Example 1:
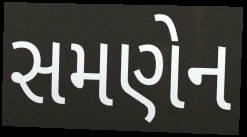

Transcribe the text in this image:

સમણેન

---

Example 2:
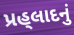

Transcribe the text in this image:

પ્રહ્‌લાદનું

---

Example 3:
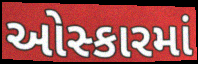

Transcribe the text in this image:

ઓસ્કારમાં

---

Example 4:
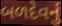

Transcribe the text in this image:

બળદેવનું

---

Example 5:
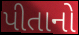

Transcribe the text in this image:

પીતાનો